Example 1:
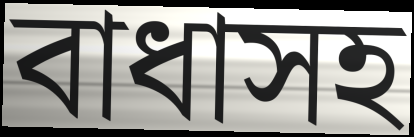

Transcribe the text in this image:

বাধাসহ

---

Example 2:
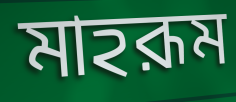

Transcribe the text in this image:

মাহরূম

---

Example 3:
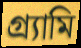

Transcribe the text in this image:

গ্র্যামি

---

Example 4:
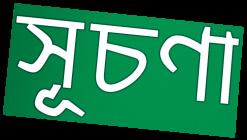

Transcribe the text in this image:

সূচণা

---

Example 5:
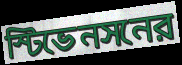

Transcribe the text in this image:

স্টিভেনসনের